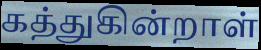
கத்துகின்றாள்